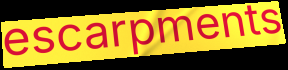
escarpments